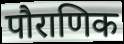
पौराणिक